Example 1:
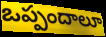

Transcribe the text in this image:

ఒప్పందాలూ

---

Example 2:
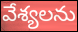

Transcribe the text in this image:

వేశ్యలను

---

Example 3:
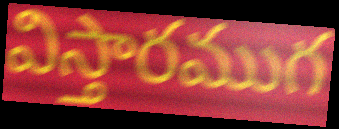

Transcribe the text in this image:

విస్తారముగ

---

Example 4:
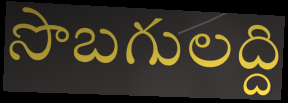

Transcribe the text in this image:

సొబగులద్ది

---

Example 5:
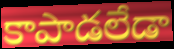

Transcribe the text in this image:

కాపాడలేడా